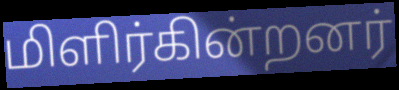
மிளிர்கின்றனர்